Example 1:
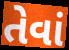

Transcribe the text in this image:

તેવાં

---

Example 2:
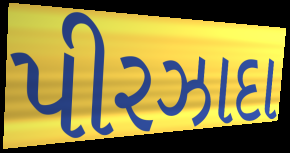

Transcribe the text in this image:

પીરઝાદા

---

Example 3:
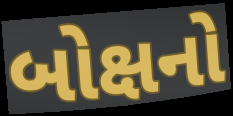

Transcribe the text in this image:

બોક્ષનો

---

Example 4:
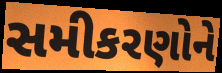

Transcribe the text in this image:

સમીકરણોને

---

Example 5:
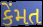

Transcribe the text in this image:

કેંમત